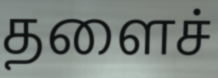
தளைச்